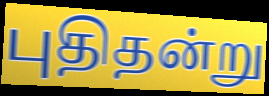
புதிதன்று